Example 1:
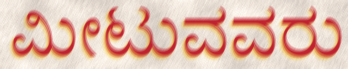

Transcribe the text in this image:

ಮೀಟುವವರು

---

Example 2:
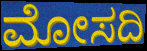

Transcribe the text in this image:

ಮೋಸದಿ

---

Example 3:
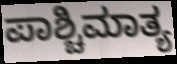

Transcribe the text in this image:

ಪಾಶ್ಚಿಮಾತ್ಯ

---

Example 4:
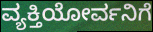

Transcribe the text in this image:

ವ್ಯಕ್ತಿಯೋರ್ವನಿಗೆ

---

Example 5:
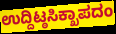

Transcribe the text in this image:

ಉದ್ದಿಟ್ಠಸಿಕ್ಖಾಪದಂ